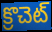
క్రొచెట్